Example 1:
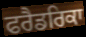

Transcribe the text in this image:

ਫਰੈਡਰਿਕਾ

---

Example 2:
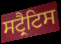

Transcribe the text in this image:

ਸਟ੍ਰੈਟਿਸ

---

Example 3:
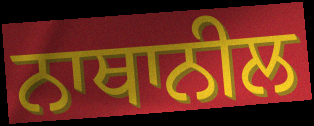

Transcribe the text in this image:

ਨਾਥਾਨੀਲ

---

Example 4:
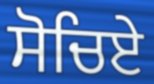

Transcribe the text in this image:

ਸੋਚਿਏ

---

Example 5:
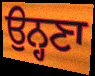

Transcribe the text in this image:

ਉਨ੍ਹਣਾ